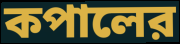
কপালের